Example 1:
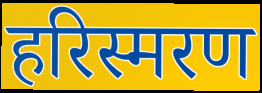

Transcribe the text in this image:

हरिस्मरण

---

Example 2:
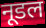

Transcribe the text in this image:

नूडल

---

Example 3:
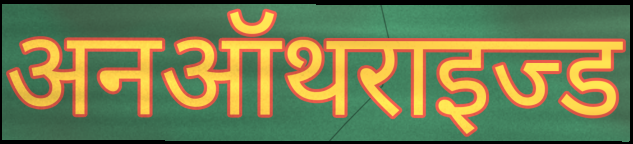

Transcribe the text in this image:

अनऑथराइज्ड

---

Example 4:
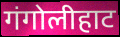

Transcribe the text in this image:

गंगोलीहाट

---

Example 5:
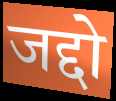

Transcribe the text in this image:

जद्दो